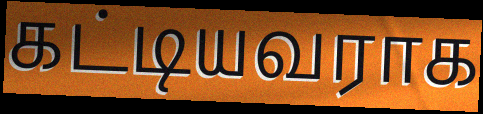
கட்டியவராக